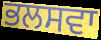
ਭਲਸਵਾ